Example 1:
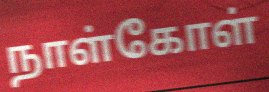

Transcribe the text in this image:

நாள்கோள்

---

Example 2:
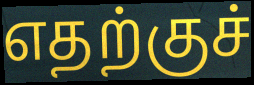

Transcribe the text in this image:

எதற்குச்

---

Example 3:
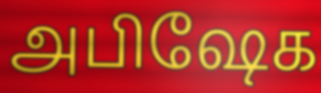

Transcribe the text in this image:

அபிஷேக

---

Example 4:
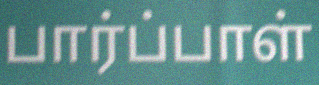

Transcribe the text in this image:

பார்ப்பாள்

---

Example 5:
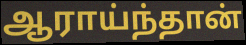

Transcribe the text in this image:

ஆராய்ந்தான்